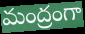
మంద్రంగా